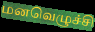
மனவெழுச்சி